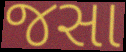
જસા